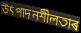
উৎপাদনশীলতাৰ